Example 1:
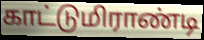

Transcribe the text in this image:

காட்டுமிராண்டி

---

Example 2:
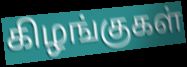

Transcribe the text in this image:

கிழங்குகள்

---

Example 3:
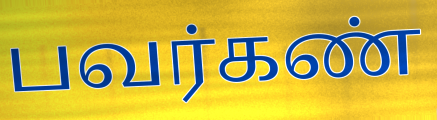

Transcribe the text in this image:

பவர்கண்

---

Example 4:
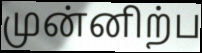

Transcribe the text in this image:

முன்னிற்ப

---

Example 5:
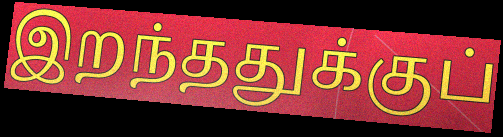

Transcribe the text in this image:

இறந்ததுக்குப்